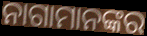
ନାଗାମାନଙ୍କର